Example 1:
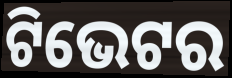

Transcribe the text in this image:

ଟିଭେଟର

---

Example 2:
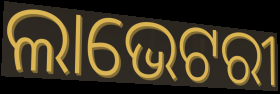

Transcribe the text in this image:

ଲାଭେଟରୀ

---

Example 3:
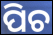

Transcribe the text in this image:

ପିଚ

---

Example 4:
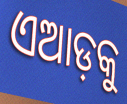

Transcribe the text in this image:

ଏଆଡ଼କୁ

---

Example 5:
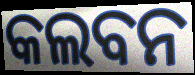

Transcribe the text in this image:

କଲବନ